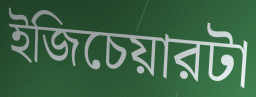
ইজিচেয়ারটা